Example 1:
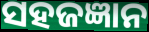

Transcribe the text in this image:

ସହଜଜ୍ଞାନ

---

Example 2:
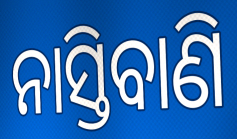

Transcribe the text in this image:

ନାସ୍ତିବାଣି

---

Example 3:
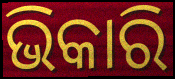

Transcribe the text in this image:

ଭିକାରି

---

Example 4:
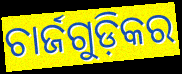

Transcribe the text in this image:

ଚାର୍ଜଗୁଡ଼ିକର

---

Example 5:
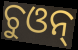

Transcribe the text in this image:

ଚୁଓନ୍